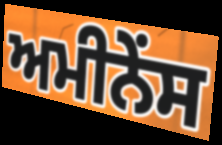
ਅਮੀਨੇਂਸ